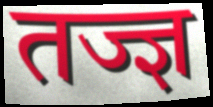
तज्ज्ञ